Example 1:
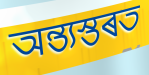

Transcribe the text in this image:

অন্ত্যস্তৰত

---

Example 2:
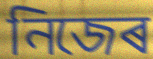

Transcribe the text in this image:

নিজেৰ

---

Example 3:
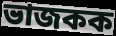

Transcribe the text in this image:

ভাজকক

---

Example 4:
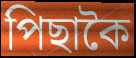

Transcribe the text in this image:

পিছাকৈ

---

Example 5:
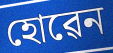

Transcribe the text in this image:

হোৱেন